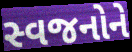
સ્વજનોને